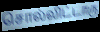
சொல்லிட்டாரு